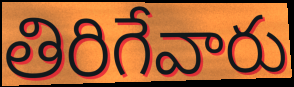
తిరిగేవారు